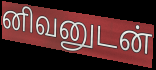
னிவனுடன்